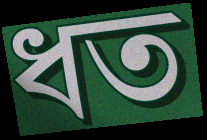
ধত